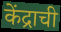
केंद्राची